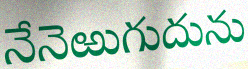
నేనెఱుగుదును